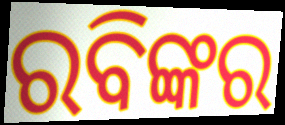
ରବିଙ୍କର